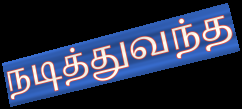
நடித்துவந்த